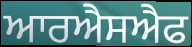
ਆਰਐਸਐਫ